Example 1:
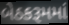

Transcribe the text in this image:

બેઠકરૂમમાં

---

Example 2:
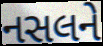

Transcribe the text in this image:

નસલને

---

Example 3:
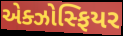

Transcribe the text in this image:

એક્ઝોસ્ફિયર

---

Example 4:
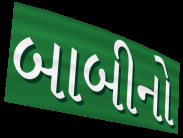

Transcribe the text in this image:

બાબીનો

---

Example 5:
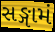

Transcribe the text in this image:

સઙ્ગામં